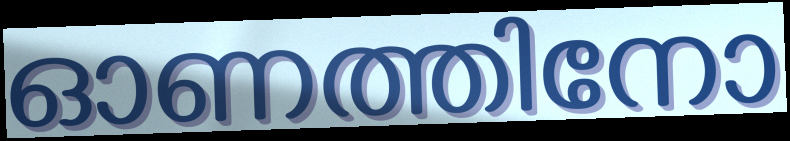
ഓണത്തിനോ